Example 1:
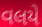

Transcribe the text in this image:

વલયે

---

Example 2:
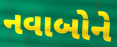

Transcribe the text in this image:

નવાબોને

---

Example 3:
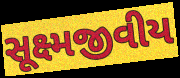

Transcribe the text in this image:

સૂક્ષ્મજીવીય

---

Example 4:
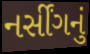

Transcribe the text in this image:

નર્સીંગનું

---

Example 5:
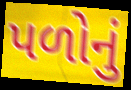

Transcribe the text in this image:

પળોનું